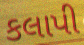
કલાપી